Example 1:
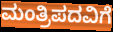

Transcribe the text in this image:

ಮಂತ್ರಿಪದವಿಗೆ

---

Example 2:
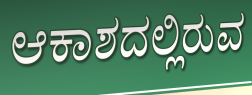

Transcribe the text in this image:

ಆಕಾಶದಲ್ಲಿರುವ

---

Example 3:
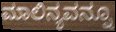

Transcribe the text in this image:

ಮಾಲಿನ್ಯವನ್ನೂ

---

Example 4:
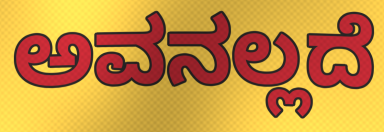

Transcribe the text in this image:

ಅವನಲ್ಲದೆ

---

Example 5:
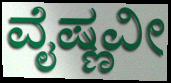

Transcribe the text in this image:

ವೈಷ್ಣವೀ